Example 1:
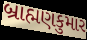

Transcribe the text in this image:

બ્રાહ્મણકુમાર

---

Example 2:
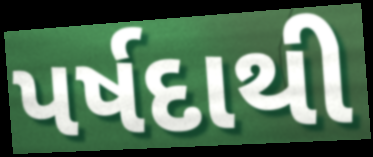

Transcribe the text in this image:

પર્ષદાથી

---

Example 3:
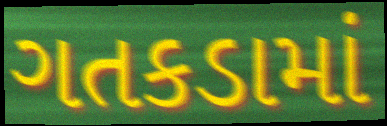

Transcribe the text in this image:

ગતકડામાં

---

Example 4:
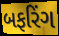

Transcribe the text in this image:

બફરિંગ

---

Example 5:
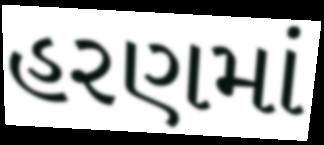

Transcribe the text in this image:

હરણમાં